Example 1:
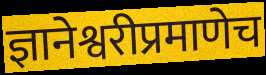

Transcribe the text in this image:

ज्ञानेश्वरीप्रमाणेच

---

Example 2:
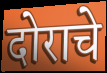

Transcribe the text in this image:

दोराचे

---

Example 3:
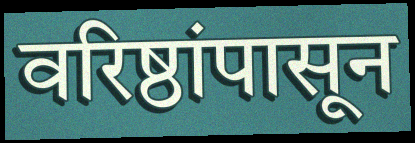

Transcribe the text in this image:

वरिष्ठांपासून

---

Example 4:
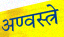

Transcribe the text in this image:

अण्वस्त्रे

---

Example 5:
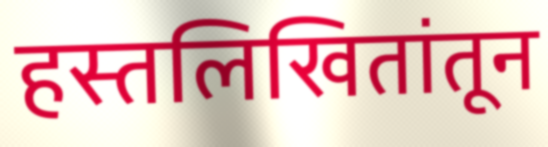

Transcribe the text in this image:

हस्तलिखितांतून